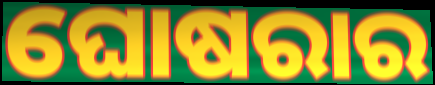
ଘୋଷରାର